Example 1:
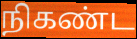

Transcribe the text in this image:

நிகண்ட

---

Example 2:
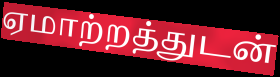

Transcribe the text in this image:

ஏமாற்றத்துடன்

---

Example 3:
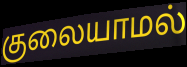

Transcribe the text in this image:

குலையாமல்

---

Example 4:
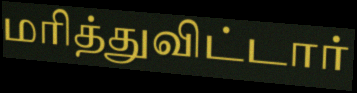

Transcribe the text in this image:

மரித்துவிட்டார்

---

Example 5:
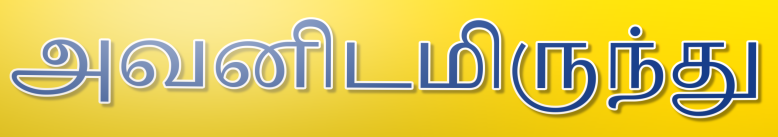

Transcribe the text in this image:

அவனிடமிருந்து